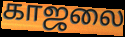
காஜலை